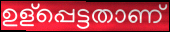
ഉള്പ്പെട്ടതാണ്